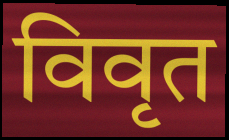
विवृत